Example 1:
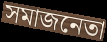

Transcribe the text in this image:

সমাজনেতা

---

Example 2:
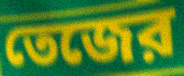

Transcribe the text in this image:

তেজের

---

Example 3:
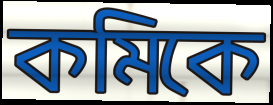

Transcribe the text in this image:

কমিকে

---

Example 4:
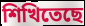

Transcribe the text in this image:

শিখিতেছে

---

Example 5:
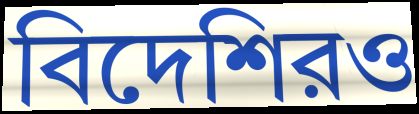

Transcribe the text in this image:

বিদেশিরও